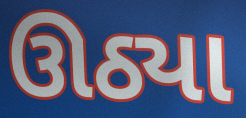
ઊઠ્યા